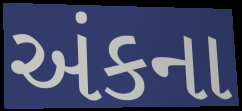
અંકના